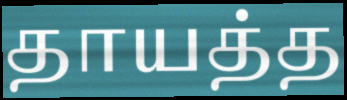
தாயத்த